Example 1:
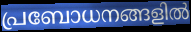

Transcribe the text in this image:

പ്രബോധനങ്ങളിൽ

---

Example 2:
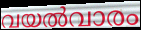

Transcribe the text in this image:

വയൽവാരം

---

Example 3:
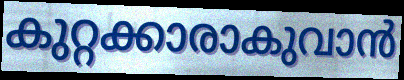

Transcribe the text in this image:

കുറ്റക്കാരാകുവാൻ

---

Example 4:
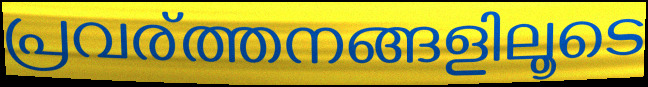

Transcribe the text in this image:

പ്രവര്ത്തനങ്ങളിലൂടെ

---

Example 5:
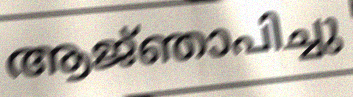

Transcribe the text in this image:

ആജ്‌ഞാപിച്ചു